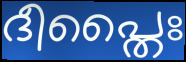
ദീപ്തൈഃ